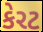
કેરટ